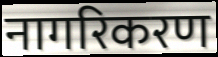
नागरिकरण